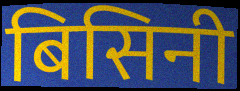
बिसिनी